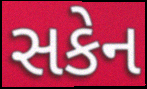
સકેન